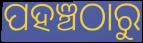
ପହଞ୍ଚଠାରୁ